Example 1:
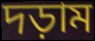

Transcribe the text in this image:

দড়াম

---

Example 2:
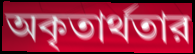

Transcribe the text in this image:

অকৃতার্থতার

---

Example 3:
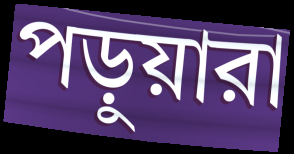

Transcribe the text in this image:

পড়ুয়ারা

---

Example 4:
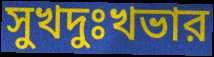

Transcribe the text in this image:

সুখদুঃখভার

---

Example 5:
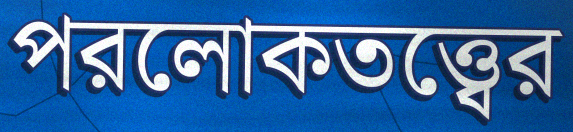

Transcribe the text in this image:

পরলোকতত্ত্বের